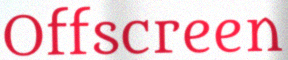
Offscreen